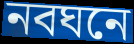
নবঘনে